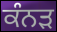
ਕੰਨਡ਼